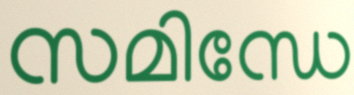
സമിന്ധേ